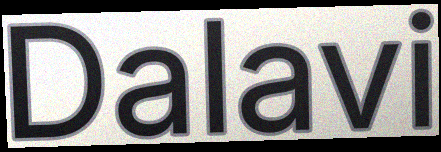
Dalavi